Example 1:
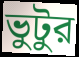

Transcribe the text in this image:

ভুটুর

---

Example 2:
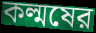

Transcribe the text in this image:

কল্মষের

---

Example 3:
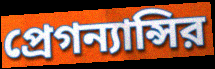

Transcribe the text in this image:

প্রেগন্যান্সির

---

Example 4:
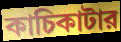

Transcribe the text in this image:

কাচিকাটার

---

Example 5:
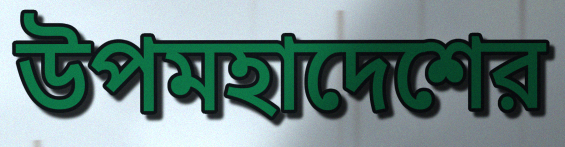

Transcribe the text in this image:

উপমহাদেশের